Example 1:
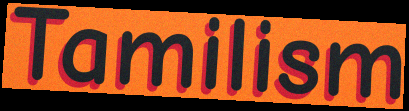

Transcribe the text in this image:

Tamilism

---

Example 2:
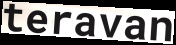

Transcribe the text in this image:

teravan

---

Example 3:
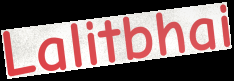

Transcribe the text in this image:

Lalitbhai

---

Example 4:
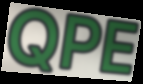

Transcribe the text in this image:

QPE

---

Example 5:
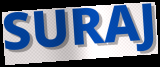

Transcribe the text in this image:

SURAJ